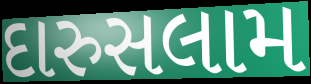
દારુસલામ